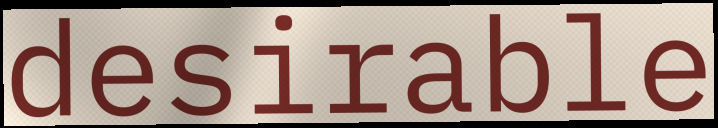
desirable